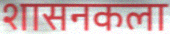
शासनकला